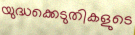
യുദ്ധക്കെടുതികളുടെ